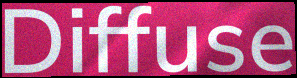
Diffuse